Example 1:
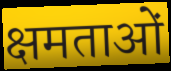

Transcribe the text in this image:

क्षमताओं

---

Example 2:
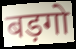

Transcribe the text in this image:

बड़गो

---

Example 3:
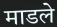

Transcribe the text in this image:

माडले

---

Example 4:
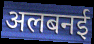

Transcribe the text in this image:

अलबनई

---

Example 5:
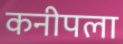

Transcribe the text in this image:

कनीपला